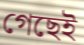
গেছেই